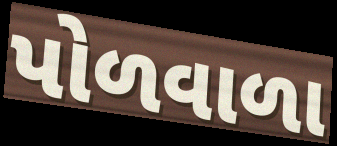
પોળવાળા